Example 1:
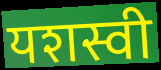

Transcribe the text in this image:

यशस्‍वी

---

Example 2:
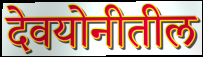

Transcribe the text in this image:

देवयोनीतील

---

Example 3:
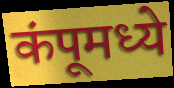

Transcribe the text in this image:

कंपूमध्ये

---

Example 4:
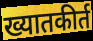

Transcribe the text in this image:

ख्यातकीर्त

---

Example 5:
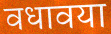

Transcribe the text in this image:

वधावया